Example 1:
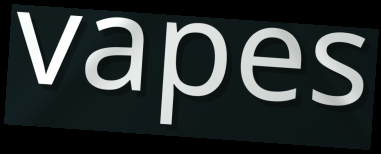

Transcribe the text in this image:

vapes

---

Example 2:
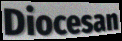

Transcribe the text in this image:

Diocesan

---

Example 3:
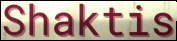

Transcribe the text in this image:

Shaktis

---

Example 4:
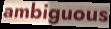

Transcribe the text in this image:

ambiguous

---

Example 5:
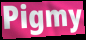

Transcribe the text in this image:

Pigmy